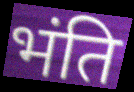
भंति